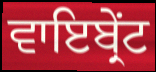
ਵਾਇਬ੍ਰੇਂਟ